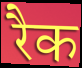
रैक